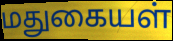
மதுகையள்